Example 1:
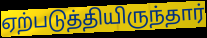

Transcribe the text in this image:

ஏற்படுத்தியிருந்தார்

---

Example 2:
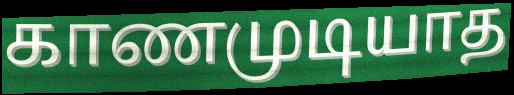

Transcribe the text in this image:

காணமுடியாத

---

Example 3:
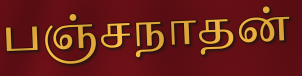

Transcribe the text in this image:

பஞ்சநாதன்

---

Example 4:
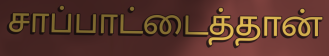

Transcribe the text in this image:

சாப்பாட்டைத்தான்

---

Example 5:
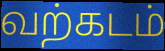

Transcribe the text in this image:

வற்கடம்